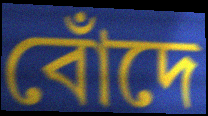
বোঁদে